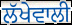
ਲੱਖੇਵਾਲੀ